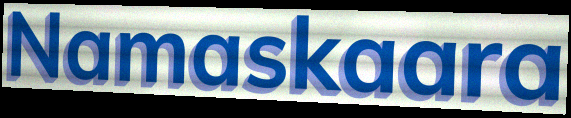
Namaskaara